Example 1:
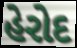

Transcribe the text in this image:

હેરોદ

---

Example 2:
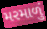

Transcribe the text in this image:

મરમાળું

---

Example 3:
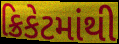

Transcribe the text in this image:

ક્રિકેટમાંથી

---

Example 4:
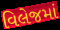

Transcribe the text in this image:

વિલેજમાં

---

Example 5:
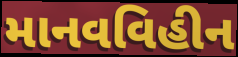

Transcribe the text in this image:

માનવવિહીન